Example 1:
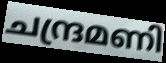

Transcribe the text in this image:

ചന്ദ്രമണി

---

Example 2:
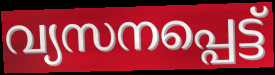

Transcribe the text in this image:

വ്യസനപ്പെട്ട്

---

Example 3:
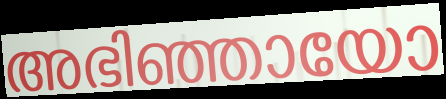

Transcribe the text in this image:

അഭിഞ്ഞായോ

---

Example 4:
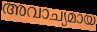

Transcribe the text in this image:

അവാച്യമായ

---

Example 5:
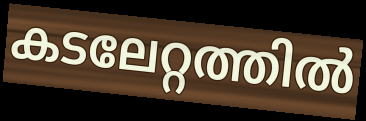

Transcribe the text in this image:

കടലേറ്റത്തിൽ